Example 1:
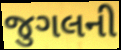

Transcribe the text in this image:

જુગલની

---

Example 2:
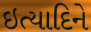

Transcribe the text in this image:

ઇત્‍યાદિને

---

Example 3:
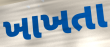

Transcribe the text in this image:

ખાખતા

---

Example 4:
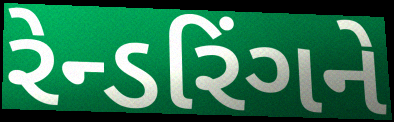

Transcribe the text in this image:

રેન્ડરિંગને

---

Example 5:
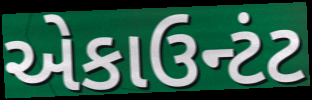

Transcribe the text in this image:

એકાઉન્ટંટ